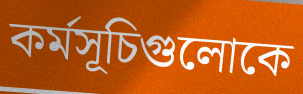
কর্মসূচিগুলোকে